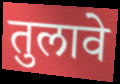
तुलावे